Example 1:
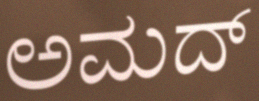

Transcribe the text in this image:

ಅಮದ್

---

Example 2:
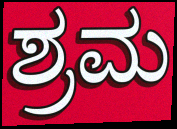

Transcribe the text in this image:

ಶ್ರಮ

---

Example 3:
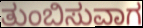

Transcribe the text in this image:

ತುಂಬಿಸುವಾಗ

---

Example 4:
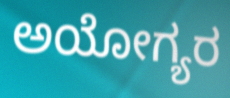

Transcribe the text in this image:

ಅಯೋಗ್ಯರ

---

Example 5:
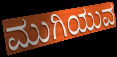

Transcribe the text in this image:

ಮುಗಿಯುವ